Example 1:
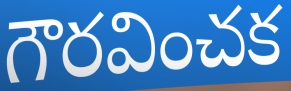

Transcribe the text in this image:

గౌరవించక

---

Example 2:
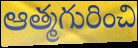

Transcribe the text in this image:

ఆత్మగురించి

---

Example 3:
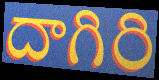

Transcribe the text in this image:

దాగిరి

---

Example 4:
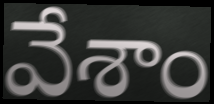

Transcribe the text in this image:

వేశాం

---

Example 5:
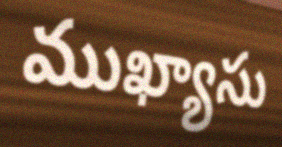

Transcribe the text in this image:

ముఖ్యాసు